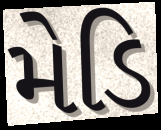
મેડિ